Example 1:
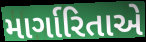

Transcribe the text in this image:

માર્ગારિતાએ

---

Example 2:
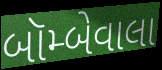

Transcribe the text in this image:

બૉમ્બેવાલા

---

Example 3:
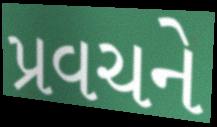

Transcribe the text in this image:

પ્રવચને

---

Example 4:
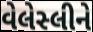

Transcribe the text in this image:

વેલેસ્લીને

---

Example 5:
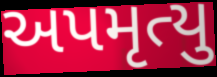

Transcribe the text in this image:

અપમૃત્યુ